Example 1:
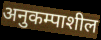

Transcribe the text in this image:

अनुकम्पाशील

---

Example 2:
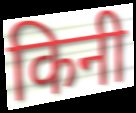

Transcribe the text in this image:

किनी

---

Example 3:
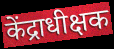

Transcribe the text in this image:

केंद्राधीक्षक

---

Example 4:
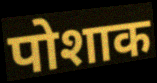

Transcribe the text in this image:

पोशाक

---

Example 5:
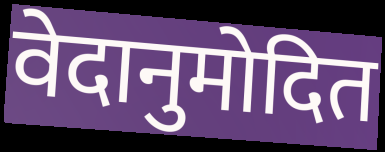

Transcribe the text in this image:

वेदानुमोदित